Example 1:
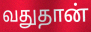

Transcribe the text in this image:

வதுதான்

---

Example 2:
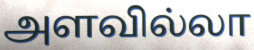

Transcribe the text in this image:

அளவில்லா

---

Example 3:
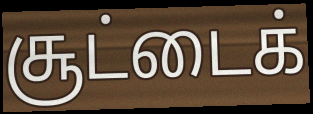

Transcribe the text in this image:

சூட்டைக்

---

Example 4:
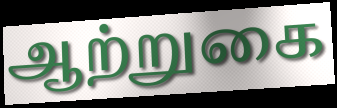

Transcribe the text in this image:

ஆற்றுகை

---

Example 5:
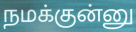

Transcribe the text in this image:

நமக்குன்னு